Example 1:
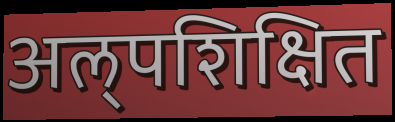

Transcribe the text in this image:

अल्पशिक्षित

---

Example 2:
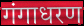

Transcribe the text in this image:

गंगाधरण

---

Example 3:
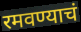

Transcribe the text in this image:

रमवण्याचं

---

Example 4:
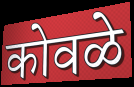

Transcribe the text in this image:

कोवळे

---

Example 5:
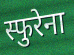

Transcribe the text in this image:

स्फुरेना